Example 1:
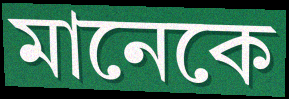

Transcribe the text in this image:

মানেকে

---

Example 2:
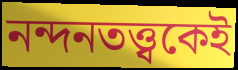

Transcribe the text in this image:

নন্দনতত্ত্বকেই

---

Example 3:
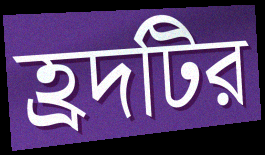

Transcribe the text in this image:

হ্রদটির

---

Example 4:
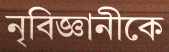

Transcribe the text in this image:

নৃবিজ্ঞানীকে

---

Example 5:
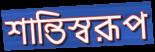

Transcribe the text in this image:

শান্তিস্বরূপ